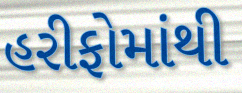
હરીફોમાંથી